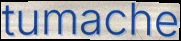
tumache